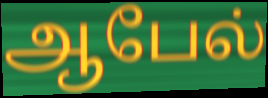
ஆபேல்